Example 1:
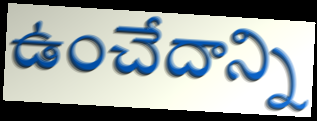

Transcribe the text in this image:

ఉంచేదాన్ని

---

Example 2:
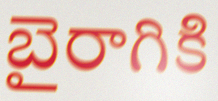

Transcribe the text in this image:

బైరాగికి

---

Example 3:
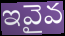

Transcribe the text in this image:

ఇవైవ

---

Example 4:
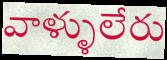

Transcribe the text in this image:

వాళ్ళులేరు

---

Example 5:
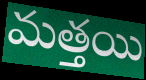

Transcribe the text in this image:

మత్తయి